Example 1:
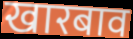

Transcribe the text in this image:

खारबाव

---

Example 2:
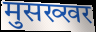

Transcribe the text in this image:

मुसख्खर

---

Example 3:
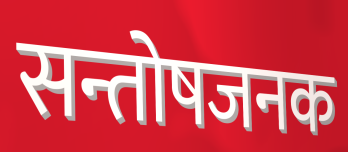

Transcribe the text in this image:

सन्तोषजनक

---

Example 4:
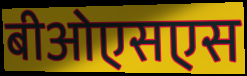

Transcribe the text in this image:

बीओएसएस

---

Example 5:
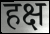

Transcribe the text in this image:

हक्ष